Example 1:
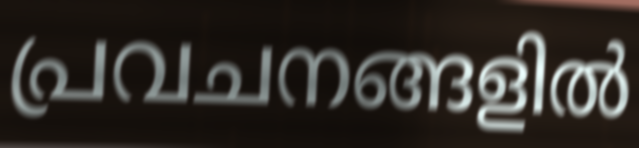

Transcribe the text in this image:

പ്രവചനങ്ങളിൽ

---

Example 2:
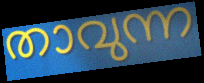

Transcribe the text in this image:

താവുന്ന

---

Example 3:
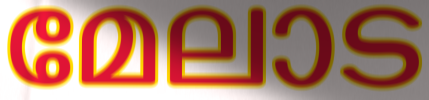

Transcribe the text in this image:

മേലാട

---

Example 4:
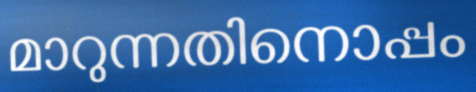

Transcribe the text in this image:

മാറുന്നതിനൊപ്പം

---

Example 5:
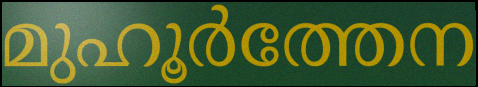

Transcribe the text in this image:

മുഹൂർത്തേന